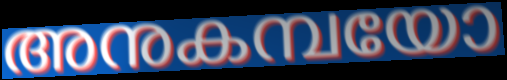
അനുകമ്പയോ